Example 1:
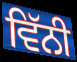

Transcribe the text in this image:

ਵਿੱਨੀ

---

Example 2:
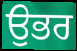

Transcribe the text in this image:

ਉਭਰ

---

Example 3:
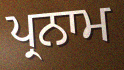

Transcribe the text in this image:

ਪ੍ਰਨਾਮ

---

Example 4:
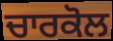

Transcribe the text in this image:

ਚਾਰਕੋਲ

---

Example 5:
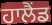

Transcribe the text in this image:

ਹਾਲੈਂਡ